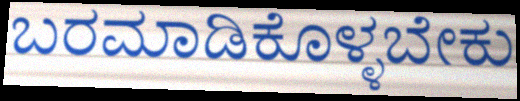
ಬರಮಾಡಿಕೊಳ್ಳಬೇಕು